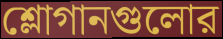
শ্লোগানগুলোর